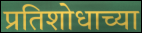
प्रतिशोधाच्या